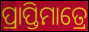
ପ୍ରାପ୍ତିମାତ୍ରେ